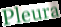
Pleura